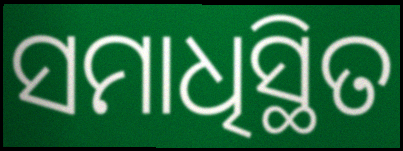
ସମାଧିସ୍ଥିତ